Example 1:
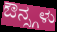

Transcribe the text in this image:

ಔನ್ಸ್ಗಳು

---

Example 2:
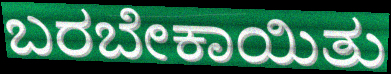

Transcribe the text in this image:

ಬರಬೇಕಾಯಿತು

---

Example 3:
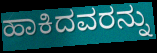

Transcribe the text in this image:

ಹಾಕಿದವರನ್ನು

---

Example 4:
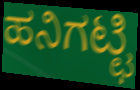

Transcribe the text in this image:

ಹನಿಗಟ್ಟಿ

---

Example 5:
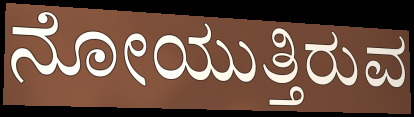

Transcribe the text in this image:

ನೋಯುತ್ತಿರುವ